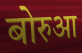
बोरुआ